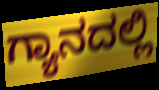
ಗ್ಯಾನದಲ್ಲಿ